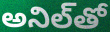
అనిల్‌తో